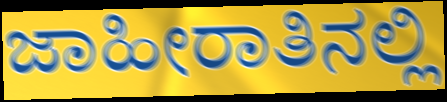
ಜಾಹೀರಾತಿನಲ್ಲಿ